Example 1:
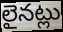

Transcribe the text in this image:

లైనట్లు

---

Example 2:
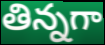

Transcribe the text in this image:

తిన్నగా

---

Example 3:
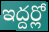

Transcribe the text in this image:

ఇద్దర్లో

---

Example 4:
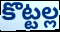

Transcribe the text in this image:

కొట్టల్ల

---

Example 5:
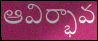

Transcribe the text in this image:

ఆవిర్భావ